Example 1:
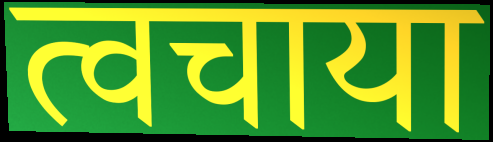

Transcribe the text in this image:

त्वचाया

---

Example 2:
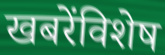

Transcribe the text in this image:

खबरेंविशेष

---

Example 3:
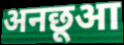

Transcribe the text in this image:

अनछूआ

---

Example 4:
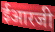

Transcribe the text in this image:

ईआरजी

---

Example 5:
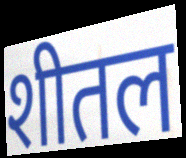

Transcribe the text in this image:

शीतल